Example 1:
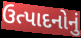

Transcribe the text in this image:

ઉત્પાદનોનું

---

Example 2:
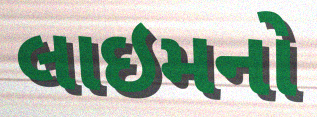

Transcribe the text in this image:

લાઇમનો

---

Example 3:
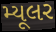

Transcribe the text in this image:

મ્યૂલર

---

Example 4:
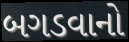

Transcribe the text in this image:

બગડવાનો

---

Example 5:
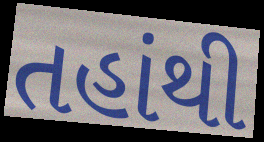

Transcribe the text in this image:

તહાંથી